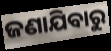
ଜଣାଯିବାରୁ